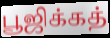
பூஜிக்கத்